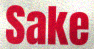
Sake